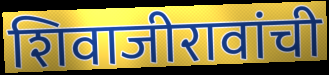
शिवाजीरावांची